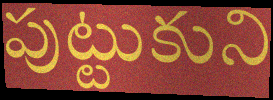
పుట్టుకుని